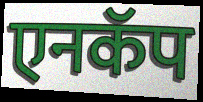
एनकॅप